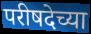
परीषदेच्या